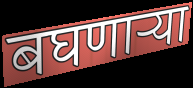
बघणाऱ्या